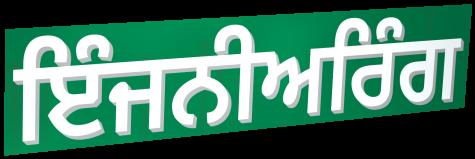
ਇੰਜਨੀਅਰਿੰਗ